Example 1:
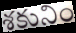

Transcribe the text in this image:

శకునిం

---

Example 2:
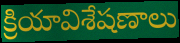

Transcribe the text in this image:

క్రియావిశేషణాలు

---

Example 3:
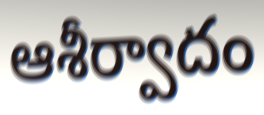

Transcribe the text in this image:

ఆశీర్వాదం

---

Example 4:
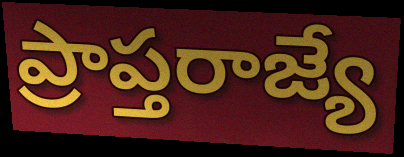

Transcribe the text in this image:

ప్రాప్తరాజ్యే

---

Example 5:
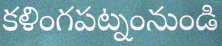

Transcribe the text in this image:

కళింగపట్నంనుండి